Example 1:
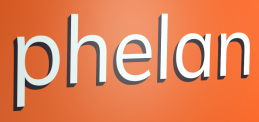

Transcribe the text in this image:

phelan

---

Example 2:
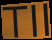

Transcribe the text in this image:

TII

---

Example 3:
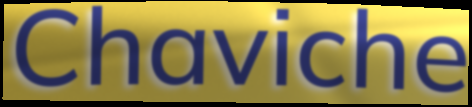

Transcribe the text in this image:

Chaviche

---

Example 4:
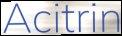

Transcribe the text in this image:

Acitrin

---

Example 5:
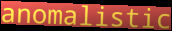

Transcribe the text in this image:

anomalistic